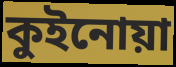
কুইনোয়া